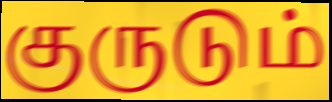
குருடும்